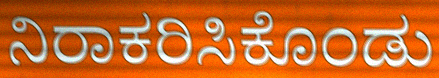
ನಿರಾಕರಿಸಿಕೊಂಡು